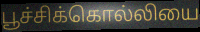
பூச்சிக்கொல்லியை